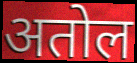
अतोल